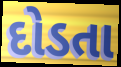
દોડતા